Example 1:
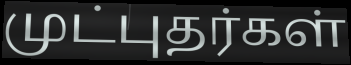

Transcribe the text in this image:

முட்புதர்கள்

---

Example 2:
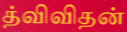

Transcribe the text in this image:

த்விவிதன்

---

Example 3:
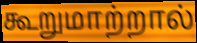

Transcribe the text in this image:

கூறுமாற்றால்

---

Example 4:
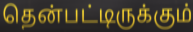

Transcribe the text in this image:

தென்பட்டிருக்கும்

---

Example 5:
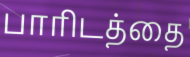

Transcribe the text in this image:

பாரிடத்தை